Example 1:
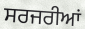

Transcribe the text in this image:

ਸਰਜਰੀਆਂ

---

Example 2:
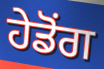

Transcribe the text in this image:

ਹੇਡੋਂਗ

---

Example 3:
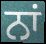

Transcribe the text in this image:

ਨਾਂ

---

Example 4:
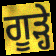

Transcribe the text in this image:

ਗੂੜ੍ਹੇ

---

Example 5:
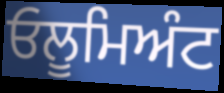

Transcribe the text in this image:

ਓਲੂਮਿਅੰਟ